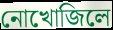
নোখোজিলে